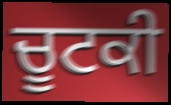
ਚੂਟਕੀ